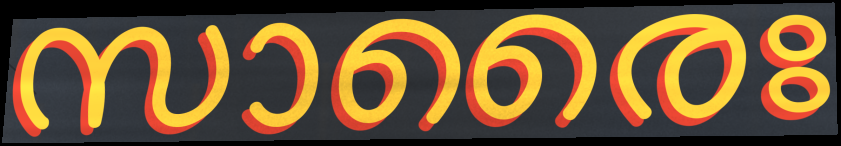
സാരൈഃ